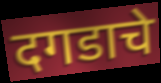
दगडाचे